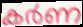
കർണ